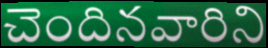
చెందినవారిని